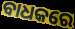
ବାଧକରେ